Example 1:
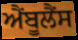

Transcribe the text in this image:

ਐੰਬੂਲੈੰਸ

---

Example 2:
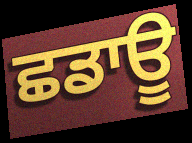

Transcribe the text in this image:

ਛਡਾਊ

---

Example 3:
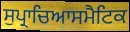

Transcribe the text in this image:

ਸੁਪ੍ਰਾਚਿਆਸਮੈਟਿਕ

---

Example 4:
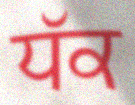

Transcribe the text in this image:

ਧੱਕ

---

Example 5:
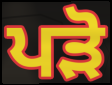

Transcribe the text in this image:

ਪੜੋ